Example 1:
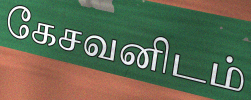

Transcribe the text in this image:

கேசவனிடம்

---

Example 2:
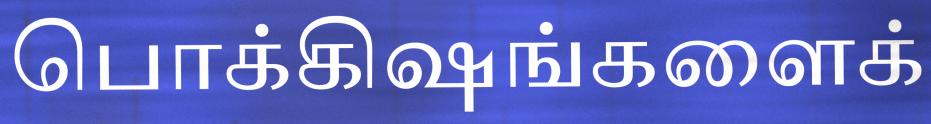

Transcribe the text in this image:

பொக்கிஷங்களைக்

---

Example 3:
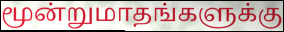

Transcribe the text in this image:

மூன்றுமாதங்களுக்கு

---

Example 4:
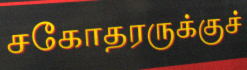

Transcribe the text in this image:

சகோதரருக்குச்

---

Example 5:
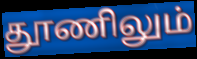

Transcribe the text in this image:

தூணிலும்